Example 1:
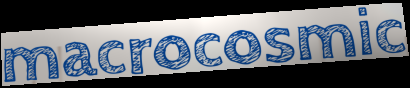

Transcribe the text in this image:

macrocosmic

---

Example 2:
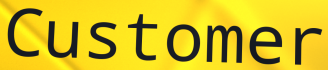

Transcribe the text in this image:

Customer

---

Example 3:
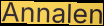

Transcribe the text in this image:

Annalen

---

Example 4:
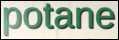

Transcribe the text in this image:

potane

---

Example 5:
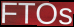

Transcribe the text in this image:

FTOs